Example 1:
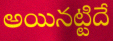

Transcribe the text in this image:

అయినట్టిదే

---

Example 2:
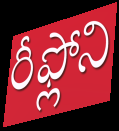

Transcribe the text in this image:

రీఫ్లోని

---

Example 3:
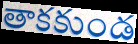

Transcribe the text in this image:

తాకకుండ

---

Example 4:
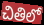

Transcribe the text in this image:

చితిలో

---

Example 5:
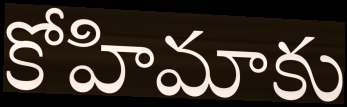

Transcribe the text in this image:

కోహిమాకు